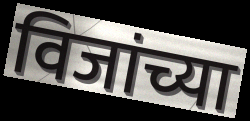
विजांच्या